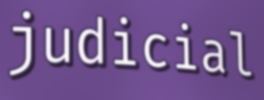
judicial